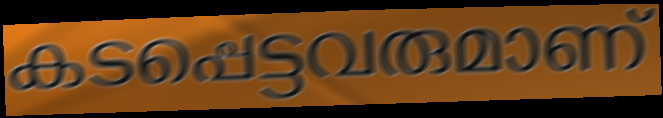
കടപ്പെട്ടവരുമാണ്